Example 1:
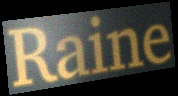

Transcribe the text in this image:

Raine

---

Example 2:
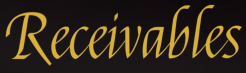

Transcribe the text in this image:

Receivables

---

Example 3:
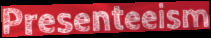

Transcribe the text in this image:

Presenteeism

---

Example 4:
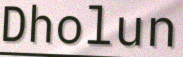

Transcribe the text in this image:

Dholun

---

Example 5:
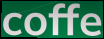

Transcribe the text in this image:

coffe